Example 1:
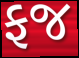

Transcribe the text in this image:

ફજ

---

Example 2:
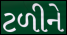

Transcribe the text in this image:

ટળીને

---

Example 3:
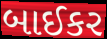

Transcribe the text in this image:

બાઈકર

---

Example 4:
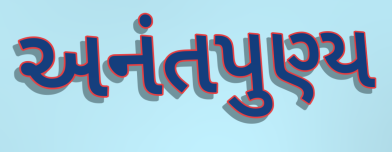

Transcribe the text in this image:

અનંતપુણ્ય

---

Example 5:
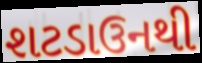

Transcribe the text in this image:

શટડાઉનથી